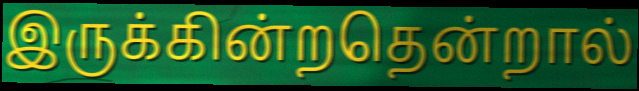
இருக்கின்றதென்றால்